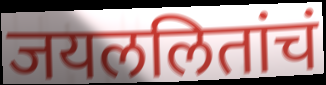
जयललितांचं